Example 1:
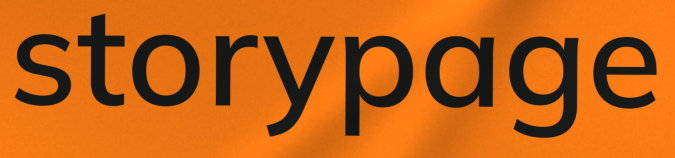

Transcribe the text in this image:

storypage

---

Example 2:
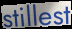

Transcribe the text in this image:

stillest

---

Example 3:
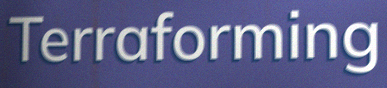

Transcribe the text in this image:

Terraforming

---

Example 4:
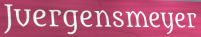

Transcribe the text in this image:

Juergensmeyer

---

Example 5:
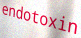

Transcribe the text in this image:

endotoxin